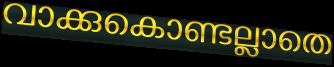
വാക്കുകൊണ്ടല്ലാതെ